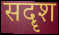
सदॄश